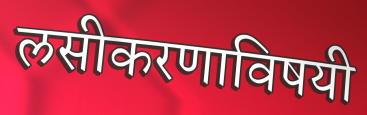
लसीकरणाविषयी